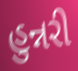
હુન્નરી